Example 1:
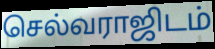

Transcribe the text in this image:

செல்வராஜிடம்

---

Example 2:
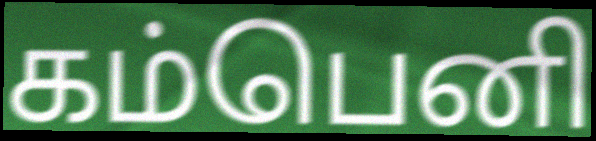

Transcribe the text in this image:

கம்பெனி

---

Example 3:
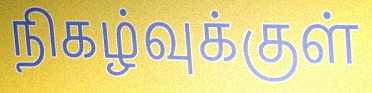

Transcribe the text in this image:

நிகழ்வுக்குள்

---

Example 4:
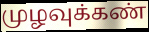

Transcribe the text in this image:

முழவுக்கண்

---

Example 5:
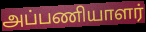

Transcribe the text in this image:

அப்பணியாளர்